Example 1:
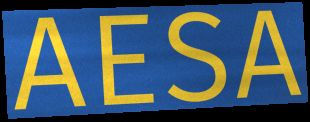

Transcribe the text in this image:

AESA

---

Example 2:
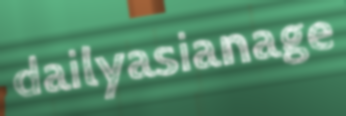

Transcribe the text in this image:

dailyasianage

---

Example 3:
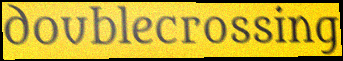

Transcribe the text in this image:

doublecrossing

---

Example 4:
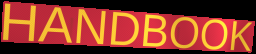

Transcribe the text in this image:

HANDBOOK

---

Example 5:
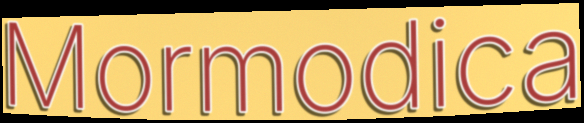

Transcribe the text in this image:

Mormodica